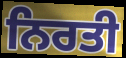
ਨਿਰਤੀ